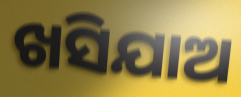
ଖସିଯାଅ